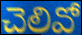
చెలివో